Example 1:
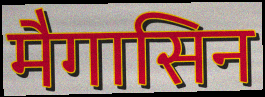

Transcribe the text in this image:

मैगासिन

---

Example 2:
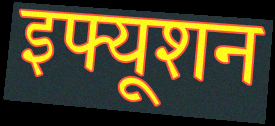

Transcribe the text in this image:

इफ्यूशन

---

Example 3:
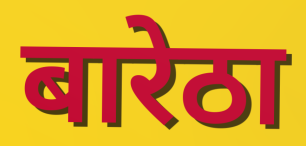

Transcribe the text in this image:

बारेठा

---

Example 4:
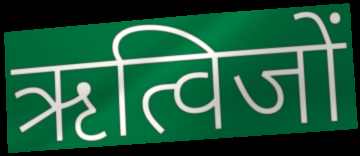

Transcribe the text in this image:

ऋत्विजों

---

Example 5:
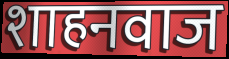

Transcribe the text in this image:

शाहनवाज